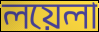
লয়েলা